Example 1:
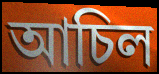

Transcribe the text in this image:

আচিল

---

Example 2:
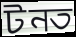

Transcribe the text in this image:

টনত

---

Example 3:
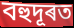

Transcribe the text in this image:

বহুদূৰত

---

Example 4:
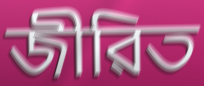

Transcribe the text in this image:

জীৱিত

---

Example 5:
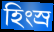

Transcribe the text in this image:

হিংস্ৰ